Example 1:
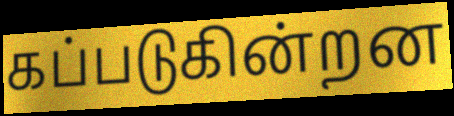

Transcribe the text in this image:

கப்படுகின்றன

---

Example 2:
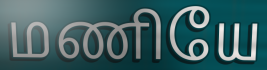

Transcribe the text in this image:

மணியே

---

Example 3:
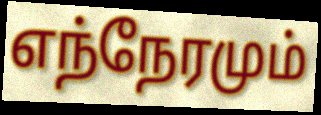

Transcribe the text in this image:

எந்நேரமும்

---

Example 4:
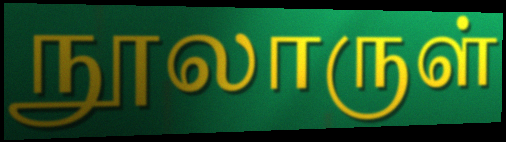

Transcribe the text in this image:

நூலாருள்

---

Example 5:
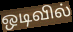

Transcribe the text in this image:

ஒடிவில்